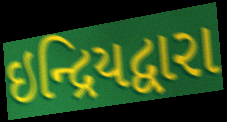
ઇન્દ્રિયદ્વારા